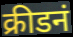
क्रीडनं